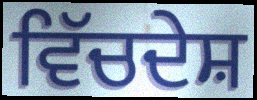
ਵਿੱਚਦੇਸ਼